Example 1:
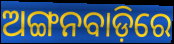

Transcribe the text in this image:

ଅଙ୍ଗନବାଡ଼ିରେ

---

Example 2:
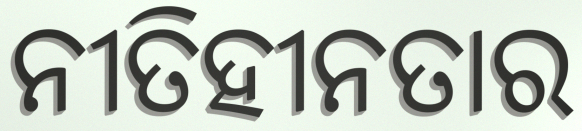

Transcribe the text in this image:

ନୀତିହୀନତାର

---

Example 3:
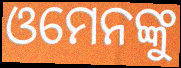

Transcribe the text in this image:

ଓମେନଙ୍କୁ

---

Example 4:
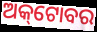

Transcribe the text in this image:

ଅକ୍‌ଟୋବର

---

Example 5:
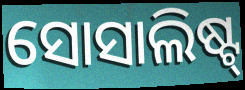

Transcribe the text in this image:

ସୋସାଲିଷ୍ଟ୍